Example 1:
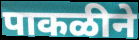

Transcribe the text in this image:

पाकळीने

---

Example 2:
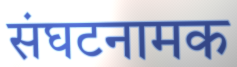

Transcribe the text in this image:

संघटनामक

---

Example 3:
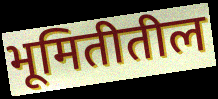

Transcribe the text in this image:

भूमितीतील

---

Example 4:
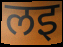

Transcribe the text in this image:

लइ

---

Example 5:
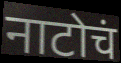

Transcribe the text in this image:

नाटोचं